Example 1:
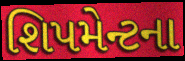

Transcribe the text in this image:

શિપમેન્ટના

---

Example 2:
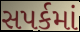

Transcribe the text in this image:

સપર્કમાં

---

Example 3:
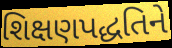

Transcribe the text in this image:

શિક્ષણપદ્ધતિને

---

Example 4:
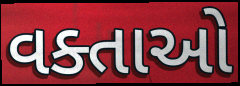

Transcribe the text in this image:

વક્તાઓ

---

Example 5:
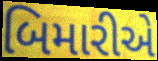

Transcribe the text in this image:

બિમારીએ